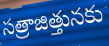
సత్రాజిత్తునకు